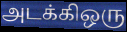
அடக்கிஒரு